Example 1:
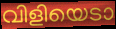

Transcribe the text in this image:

വിളിയെടാ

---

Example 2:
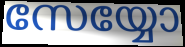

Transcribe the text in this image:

സേയ്യോ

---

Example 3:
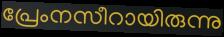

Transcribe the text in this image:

പ്രേംനസീറായിരുന്നു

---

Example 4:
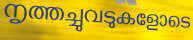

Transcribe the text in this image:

നൃത്തച്ചുവടുകളോടെ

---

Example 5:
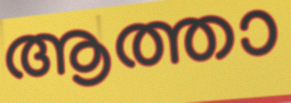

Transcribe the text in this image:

ആത്താ